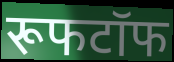
रूफटॉफ